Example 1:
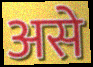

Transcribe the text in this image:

असे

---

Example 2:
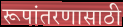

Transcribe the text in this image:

रूपांतरणासाठी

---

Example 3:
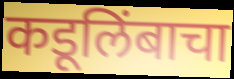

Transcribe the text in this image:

कडूलिंबाचा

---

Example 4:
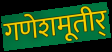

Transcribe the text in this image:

गणेशमूतीर्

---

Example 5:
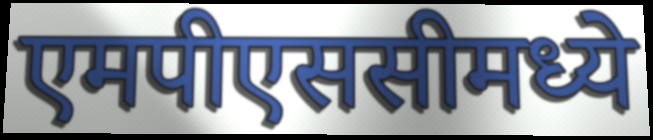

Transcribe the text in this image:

एमपीएससीमध्ये